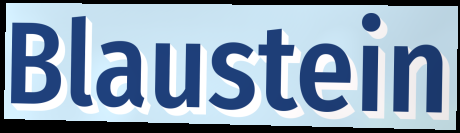
Blaustein